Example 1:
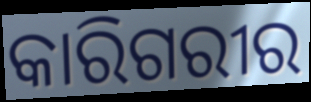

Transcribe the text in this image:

କାରିଗରୀର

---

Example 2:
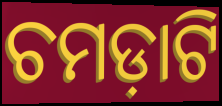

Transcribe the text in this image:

ଚମଡ଼ାଟି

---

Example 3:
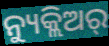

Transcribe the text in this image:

ନ୍ୟୁକ୍ଲିଅର୍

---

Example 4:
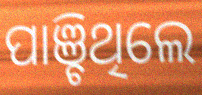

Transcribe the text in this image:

ପାଞ୍ଚିଥିଲେ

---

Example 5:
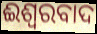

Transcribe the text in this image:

ଈଶ୍ବରବାଦ